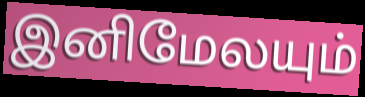
இனிமேலயும்